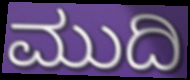
ಮುದಿ